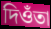
দিওঁতা